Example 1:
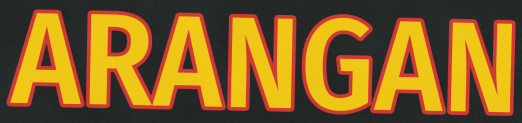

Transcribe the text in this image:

ARANGAN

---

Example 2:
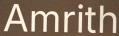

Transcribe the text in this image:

Amrith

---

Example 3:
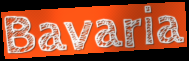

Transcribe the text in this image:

Bavaria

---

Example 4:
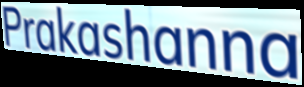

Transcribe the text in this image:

Prakashanna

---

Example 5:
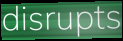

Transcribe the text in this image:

disrupts